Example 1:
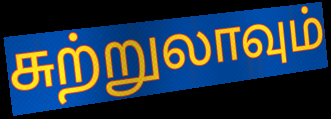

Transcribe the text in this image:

சுற்றுலாவும்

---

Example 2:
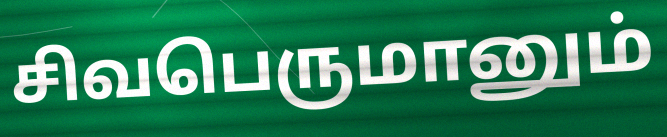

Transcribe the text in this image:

சிவபெருமானும்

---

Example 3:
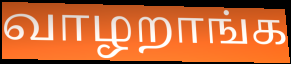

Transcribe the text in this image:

வாழறாங்க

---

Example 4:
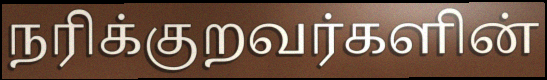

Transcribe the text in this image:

நரிக்குறவர்களின்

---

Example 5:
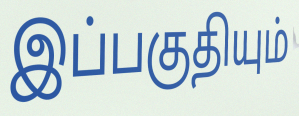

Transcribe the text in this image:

இப்பகுதியும்